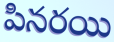
పినరయి